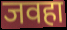
जवहा